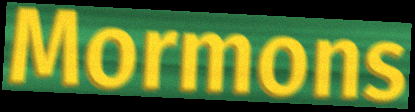
Mormons